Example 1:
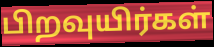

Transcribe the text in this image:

பிறவுயிர்கள்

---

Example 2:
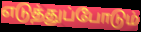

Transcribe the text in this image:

எடுத்துப்போடும்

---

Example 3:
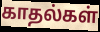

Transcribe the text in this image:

காதல்கள்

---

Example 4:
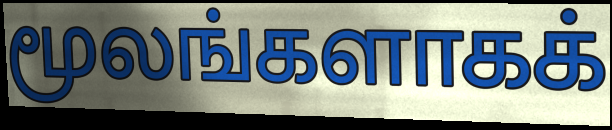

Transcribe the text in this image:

மூலங்களாகக்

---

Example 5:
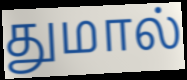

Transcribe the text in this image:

துமால்